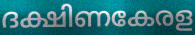
ദക്ഷിണകേരള